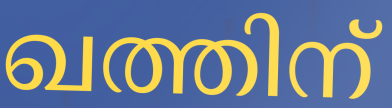
ഖത്തിന്